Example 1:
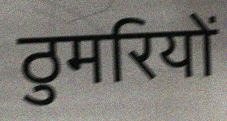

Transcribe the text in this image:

ठुमरियों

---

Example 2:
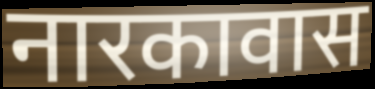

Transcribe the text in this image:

नारकावास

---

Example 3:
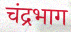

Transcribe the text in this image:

चंद्रभाग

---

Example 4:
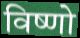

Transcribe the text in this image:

विष्णो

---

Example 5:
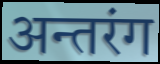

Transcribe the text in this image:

अन्तरंग